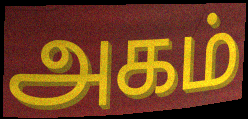
அகம்